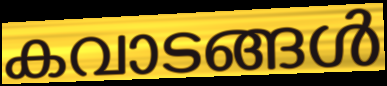
കവാടങ്ങൾ